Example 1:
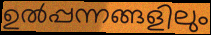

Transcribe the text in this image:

ഉൽപ്പന്നങ്ങളിലും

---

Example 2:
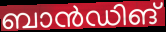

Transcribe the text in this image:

ബാൻഡിങ്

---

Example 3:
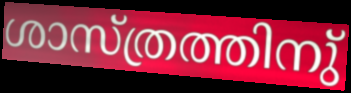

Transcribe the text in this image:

ശാസ്ത്രത്തിനു്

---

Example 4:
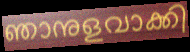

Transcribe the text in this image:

ഞാനുളവാക്കി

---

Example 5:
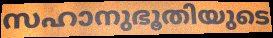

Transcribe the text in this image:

സഹാനുഭൂതിയുടെ